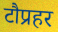
टौप्रहर